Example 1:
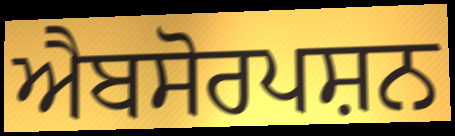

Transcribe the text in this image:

ਐਬਸੋਰਪਸ਼ਨ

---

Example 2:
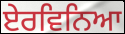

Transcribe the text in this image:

ਏਰਵਿਨਿਆ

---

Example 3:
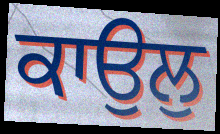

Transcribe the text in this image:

ਕਾਉਲੁ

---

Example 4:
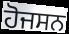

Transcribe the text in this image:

ਹੋਜਸਨ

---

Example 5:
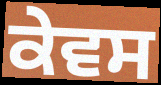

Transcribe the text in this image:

ਕੇਵਸ